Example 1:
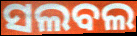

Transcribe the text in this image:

ସଲବଲ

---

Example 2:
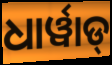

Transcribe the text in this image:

ଧାର୍ୱାଡ୍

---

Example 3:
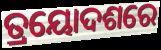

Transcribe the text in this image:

ତ୍ରୟୋଦଶରେ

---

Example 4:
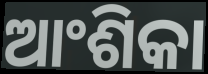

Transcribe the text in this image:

ଆଂଶିକା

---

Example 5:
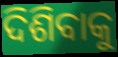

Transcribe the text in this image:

ଦିଶିବାକୁ